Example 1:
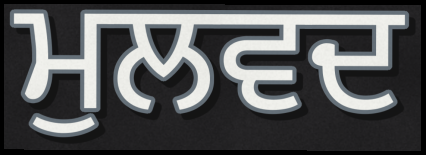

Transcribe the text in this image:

ਮੁਲਵਦ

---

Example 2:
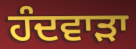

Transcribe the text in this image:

ਹੰਦਵਾੜਾ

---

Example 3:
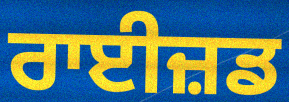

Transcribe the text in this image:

ਰਾਈਜ਼ਡ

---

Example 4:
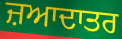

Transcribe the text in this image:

ਜ਼ਆਦਾਤਰ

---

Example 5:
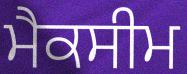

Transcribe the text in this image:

ਮੈਕਸੀਮ